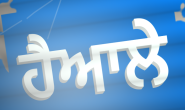
ਹੈਆਲੇ